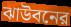
ঝাউবনের